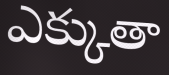
ఎక్కుతా